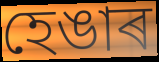
হেঙাৰ